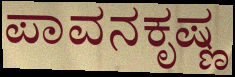
ಪಾವನಕೃಷ್ಣ